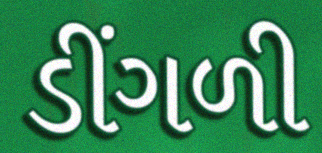
ડીંગળી